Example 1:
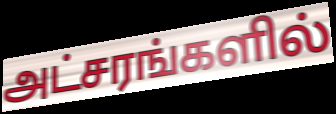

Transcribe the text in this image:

அட்சரங்களில்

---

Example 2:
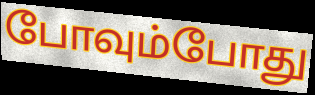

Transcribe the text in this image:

போவும்போது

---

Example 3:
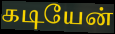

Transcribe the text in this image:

கடியேன்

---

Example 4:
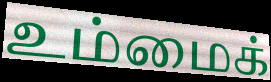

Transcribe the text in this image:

உம்மைக்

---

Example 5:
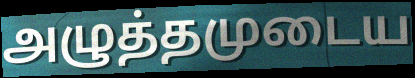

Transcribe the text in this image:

அழுத்தமுடைய